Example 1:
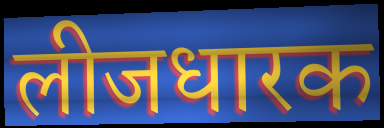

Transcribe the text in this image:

लीजधारक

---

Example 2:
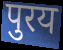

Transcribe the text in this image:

पुरय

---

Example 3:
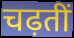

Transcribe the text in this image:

चढ़तीं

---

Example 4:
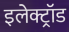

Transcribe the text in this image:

इलेक्ट्रॉड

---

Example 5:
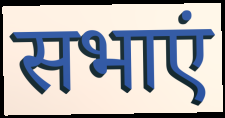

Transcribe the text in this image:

सभाएं